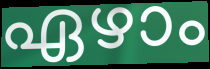
ഏഴാം